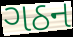
ગઠન